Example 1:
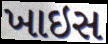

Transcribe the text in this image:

ખાઇસ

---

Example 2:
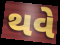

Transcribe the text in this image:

થવે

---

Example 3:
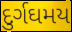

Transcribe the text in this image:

દુર્ગઘમય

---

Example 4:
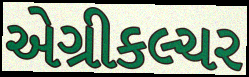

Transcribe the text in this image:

એગ્રીકલ્ચર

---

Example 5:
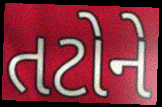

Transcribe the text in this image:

તટોને